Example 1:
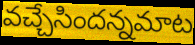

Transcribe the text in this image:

వచ్చేసిందన్నమాట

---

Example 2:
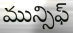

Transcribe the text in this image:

మున్సిఫ్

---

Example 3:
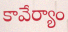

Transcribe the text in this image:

కావేర్యాం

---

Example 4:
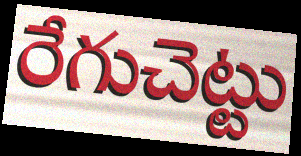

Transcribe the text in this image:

రేగుచెట్టు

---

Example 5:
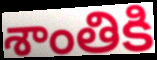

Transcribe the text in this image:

శాంతికి